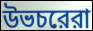
উভচরেরা